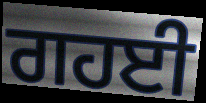
ਗਹਈ